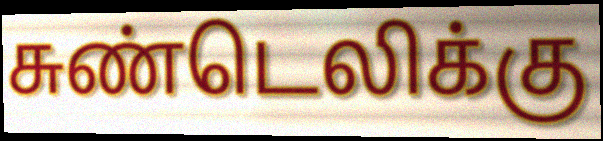
சுண்டெலிக்கு